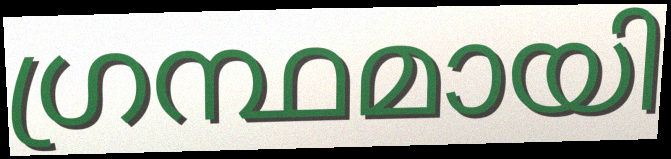
ഗ്രന്ഥമായി